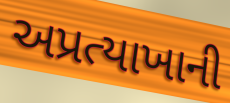
અપ્રત્યાખાની